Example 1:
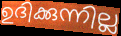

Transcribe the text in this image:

ഉദിക്കുന്നില്ല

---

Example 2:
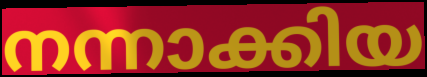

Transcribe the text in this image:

നന്നാക്കിയ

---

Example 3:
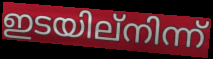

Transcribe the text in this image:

ഇടയില്നിന്ന്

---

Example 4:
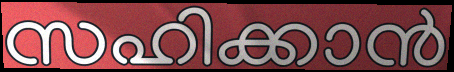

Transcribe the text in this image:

സഹിക്കാൻ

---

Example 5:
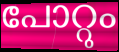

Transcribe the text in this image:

പോറ്റും